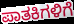
ಪಾತಕಿಗಳಿಗೆ